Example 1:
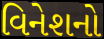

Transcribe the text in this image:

વિનેશનો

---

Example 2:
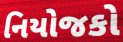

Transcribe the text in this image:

નિયોજકો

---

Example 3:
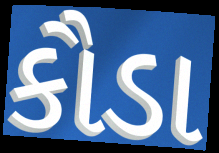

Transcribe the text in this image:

કૌડા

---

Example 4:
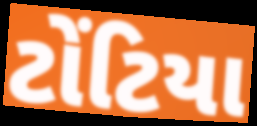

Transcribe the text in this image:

ટોંટિયા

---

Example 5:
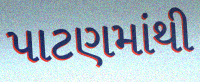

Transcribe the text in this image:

પાટણમાંથી